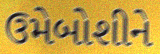
ઉમેબોશીને